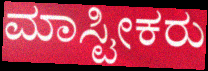
ಮಾಸ್ಟೀಕರು